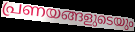
പ്രണയങ്ങളുടെയും